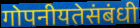
गोपनीयतेसंबंधी